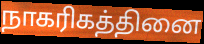
நாகரிகத்தினை